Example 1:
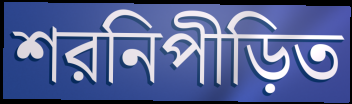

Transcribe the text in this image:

শরনিপীড়িত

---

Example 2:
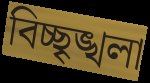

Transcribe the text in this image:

বিচ্ছৃঙ্খলা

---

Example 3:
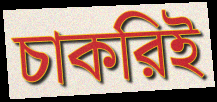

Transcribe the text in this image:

চাকরিই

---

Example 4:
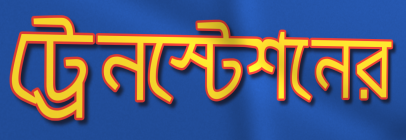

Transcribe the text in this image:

ট্রেনস্টেশনের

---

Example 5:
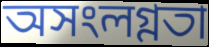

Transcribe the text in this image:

অসংলগ্নতা